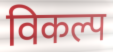
विकल्‍प